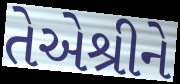
તેએશ્રીને